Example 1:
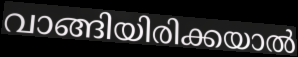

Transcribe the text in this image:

വാങ്ങിയിരിക്കയാൽ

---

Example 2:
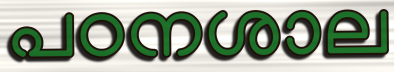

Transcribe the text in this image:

പഠനശാല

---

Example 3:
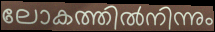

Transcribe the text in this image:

ലോകത്തിൽനിന്നും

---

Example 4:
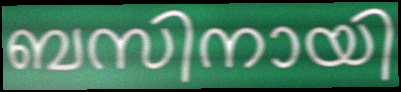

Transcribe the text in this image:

ബസിനായി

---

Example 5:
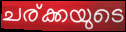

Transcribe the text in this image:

ചര്ക്കയുടെ